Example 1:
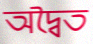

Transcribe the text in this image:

অদ্বৈত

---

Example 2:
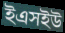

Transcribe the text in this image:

ইএসইউ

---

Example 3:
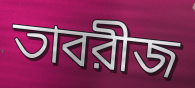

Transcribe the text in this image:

তাবরীজ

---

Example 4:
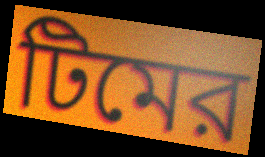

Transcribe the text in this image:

টিমের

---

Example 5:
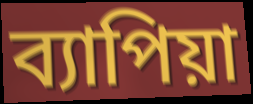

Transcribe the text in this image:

ব্যাপিয়া